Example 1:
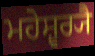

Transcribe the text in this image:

ਮਹੇਸ਼੍ਵਰ੍ਯੈ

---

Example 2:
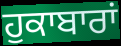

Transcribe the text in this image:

ਹੁਕਾਬਾਰਾਂ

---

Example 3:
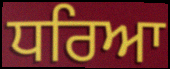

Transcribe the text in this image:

ਧਰਿਆ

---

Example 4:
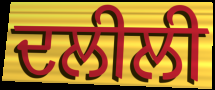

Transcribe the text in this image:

ਦਲੀਲੀ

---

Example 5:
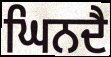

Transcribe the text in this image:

ਘਿਨਦੈ